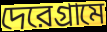
দেরেগ্রামে